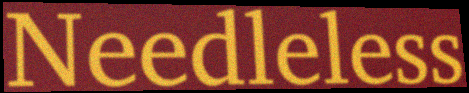
Needleless